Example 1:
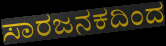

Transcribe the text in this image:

ಸಾರಜನಕದಿಂದ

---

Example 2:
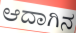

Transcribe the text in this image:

ಆದಾಗಿನ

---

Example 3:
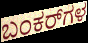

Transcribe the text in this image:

ಬಂಕರ್‌ಗಳ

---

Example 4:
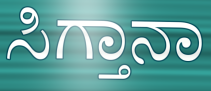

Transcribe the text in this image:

ಸಿಗ್ತಾನಾ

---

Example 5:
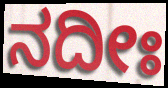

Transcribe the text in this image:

ನದೀಃ